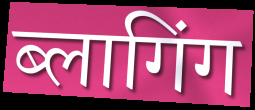
ब्लागिंग